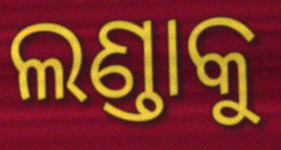
ଲଣ୍ଡାକୁ